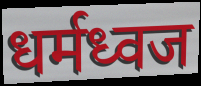
धर्मध्वज